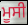
ਮੂਸੀ